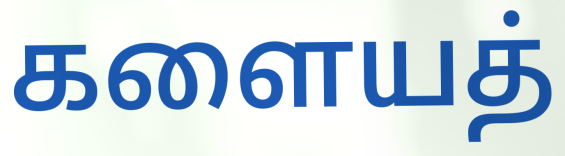
களையத்